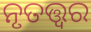
ନୃତତ୍ତ୍ଵର